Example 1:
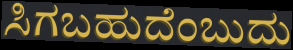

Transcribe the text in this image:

ಸಿಗಬಹುದೆಂಬುದು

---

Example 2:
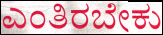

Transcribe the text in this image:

ಎಂತಿರಬೇಕು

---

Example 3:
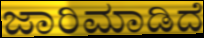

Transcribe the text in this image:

ಜಾರಿಮಾಡಿದೆ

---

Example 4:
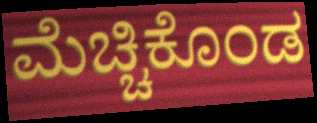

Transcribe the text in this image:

ಮೆಚ್ಚಿಕೊಂಡ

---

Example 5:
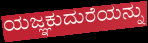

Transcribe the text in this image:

ಯಜ್ಞಕುದುರೆಯನ್ನು